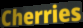
Cherries